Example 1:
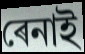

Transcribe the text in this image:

ৰেনাই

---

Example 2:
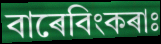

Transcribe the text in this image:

বাৰেবিংকৰাঃ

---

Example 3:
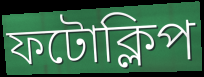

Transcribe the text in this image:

ফটোক্লিপ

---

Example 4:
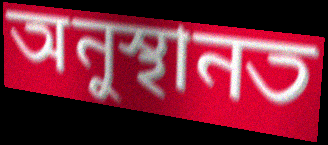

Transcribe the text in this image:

অনুস্থানত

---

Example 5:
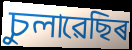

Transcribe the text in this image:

চুলাৱেছিৰ